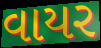
વાયર